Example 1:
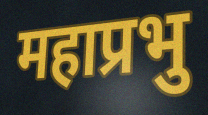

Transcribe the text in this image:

महाप्रभु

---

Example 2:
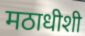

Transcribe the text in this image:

मठाधीशी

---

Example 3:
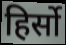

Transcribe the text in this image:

हिर्सो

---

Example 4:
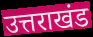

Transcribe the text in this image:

उत्तराखंड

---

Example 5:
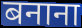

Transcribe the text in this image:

बनाना